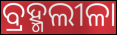
ବ୍ରହ୍ମଲୀଳା